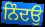
ਨਿੰਦਉ